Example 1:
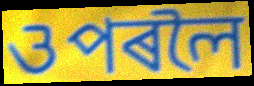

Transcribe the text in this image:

ওপৰলৈ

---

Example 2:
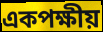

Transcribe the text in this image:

একপক্ষীয়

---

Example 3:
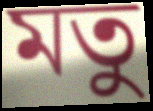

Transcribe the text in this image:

মতু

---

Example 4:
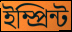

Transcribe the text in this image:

ইম্প্ৰিন্ট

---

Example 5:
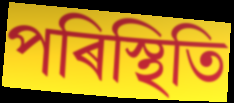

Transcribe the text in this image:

পৰিস্থিতি